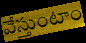
వేస్తుంటాం